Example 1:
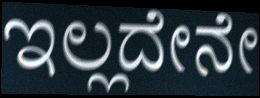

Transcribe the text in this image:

ಇಲ್ಲದೇನೇ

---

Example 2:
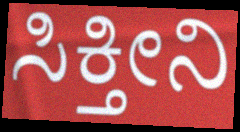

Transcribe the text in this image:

ಸಿಕ್ತೀನಿ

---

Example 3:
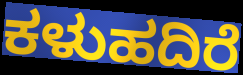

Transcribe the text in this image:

ಕಳುಹದಿರೆ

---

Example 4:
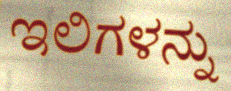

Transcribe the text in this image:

ಇಲಿಗಳನ್ನು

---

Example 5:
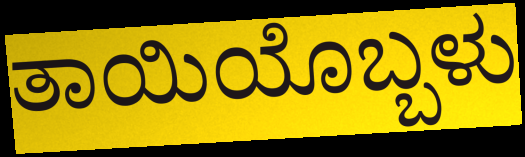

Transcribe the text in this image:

ತಾಯಿಯೊಬ್ಬಳು